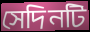
সেদিনটি